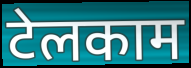
टेलकाम